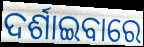
ଦର୍ଶାଇବାରେ